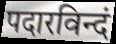
पदारविन्दं